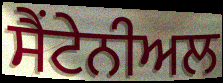
ਸੈਂਟੇਨੀਅਲ